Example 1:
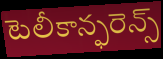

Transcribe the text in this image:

టెలీకాన్ఫరెన్స్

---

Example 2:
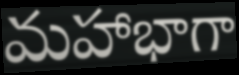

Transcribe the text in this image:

మహాభాగా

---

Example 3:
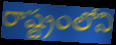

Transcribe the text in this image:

రాష్ట్రంలోని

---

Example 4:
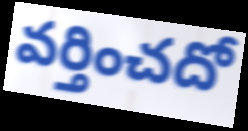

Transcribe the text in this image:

వర్తించదో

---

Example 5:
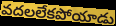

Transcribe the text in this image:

వదలలేకపోయాడు